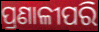
ପ୍ରଣାଳୀପରି